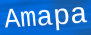
Amapa